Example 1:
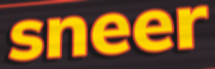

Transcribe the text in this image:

sneer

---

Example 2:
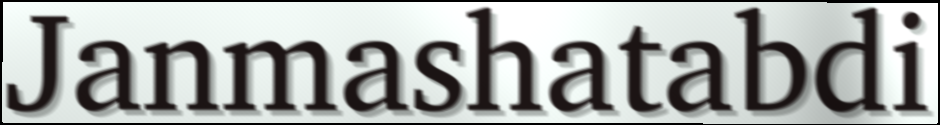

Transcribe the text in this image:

Janmashatabdi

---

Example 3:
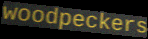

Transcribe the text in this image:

woodpeckers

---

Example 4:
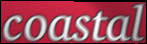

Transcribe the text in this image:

coastal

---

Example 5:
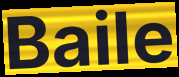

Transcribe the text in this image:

Baile